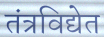
तंत्रविद्येत